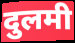
दुलमी